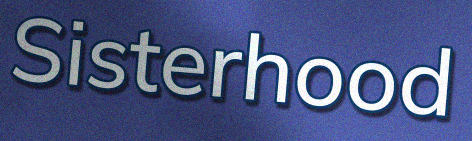
Sisterhood